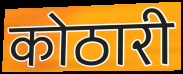
कोठारी